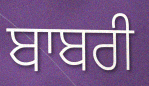
ਬਾਬਰੀ